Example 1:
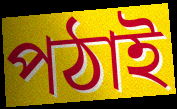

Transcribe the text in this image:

পঠাই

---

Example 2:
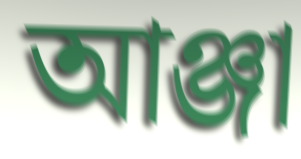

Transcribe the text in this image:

আঞ্জা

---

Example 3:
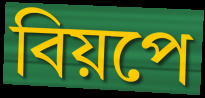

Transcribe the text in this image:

বিয়পে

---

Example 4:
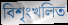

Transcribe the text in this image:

বিশৃংখলিত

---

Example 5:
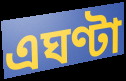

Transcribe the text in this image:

এঘণ্টা